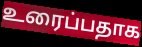
உரைப்பதாக